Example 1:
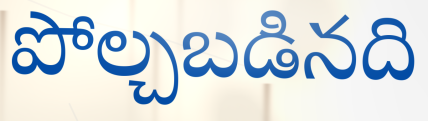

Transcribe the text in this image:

పోల్చబడినది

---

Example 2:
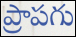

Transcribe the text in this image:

ప్రాపగు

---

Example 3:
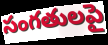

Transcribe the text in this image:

సంగతులపై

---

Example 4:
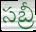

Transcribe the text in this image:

సబ్రీ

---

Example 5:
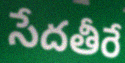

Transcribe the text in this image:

సేదతీరే